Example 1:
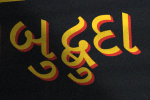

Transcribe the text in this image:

બુદ્બુદા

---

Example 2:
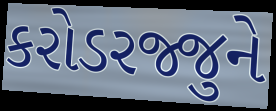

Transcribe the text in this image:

કરોડરજ્જુને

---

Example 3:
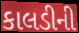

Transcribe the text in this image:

કાલડીની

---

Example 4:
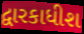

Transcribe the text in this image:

દ્વારકાધીશ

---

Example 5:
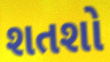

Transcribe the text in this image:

શતશો